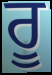
ਰੂ